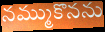
నమ్ముకొనను